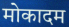
मोकादम